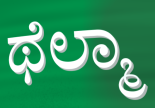
ಥೆಲ್ಮಾ